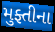
મુફ્તીના